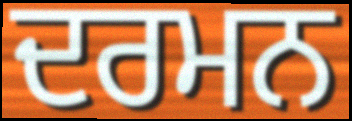
ਦਰਮਨ